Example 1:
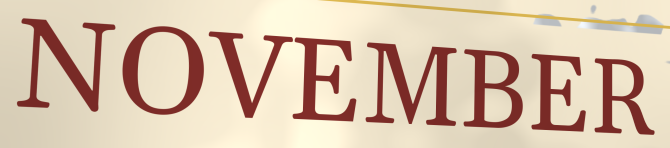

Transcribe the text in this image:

NOVEMBER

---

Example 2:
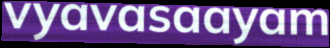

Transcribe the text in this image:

vyavasaayam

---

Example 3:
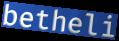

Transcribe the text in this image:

betheli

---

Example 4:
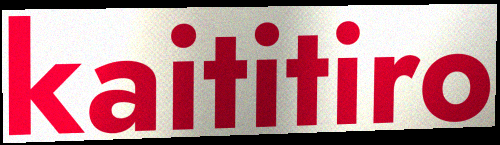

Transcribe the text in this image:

kaititiro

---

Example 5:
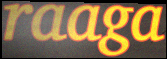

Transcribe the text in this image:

raaga